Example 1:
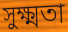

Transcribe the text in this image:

সুক্ষ্মতা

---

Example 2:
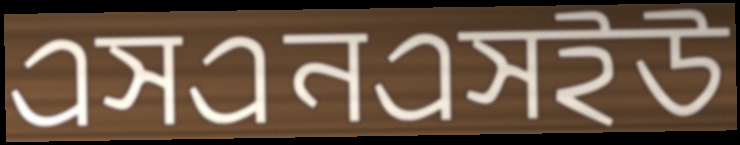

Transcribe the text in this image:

এসএনএসইউ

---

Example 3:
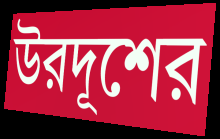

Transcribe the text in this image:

উরদূশের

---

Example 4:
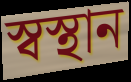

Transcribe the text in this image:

স্বস্থান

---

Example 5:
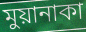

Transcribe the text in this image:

মুয়ানাকা